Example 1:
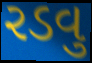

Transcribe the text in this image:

રડવુ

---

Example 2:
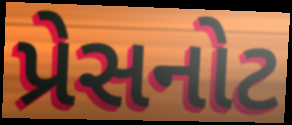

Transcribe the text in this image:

પ્રેસનોટ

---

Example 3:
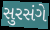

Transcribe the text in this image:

સુરસંગે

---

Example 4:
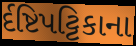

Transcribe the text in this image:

ર્દષ્ટિપટ્ટિકાના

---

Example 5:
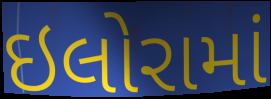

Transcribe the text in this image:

ઇલોરામાં